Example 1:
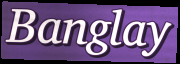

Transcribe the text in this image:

Banglay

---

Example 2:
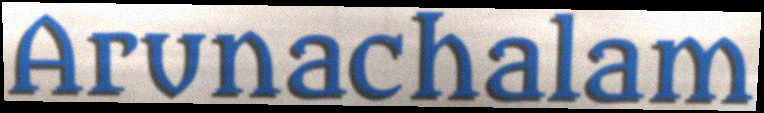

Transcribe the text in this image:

Arunachalam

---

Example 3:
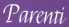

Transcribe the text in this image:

Parenti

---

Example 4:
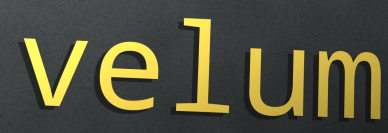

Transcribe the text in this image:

velum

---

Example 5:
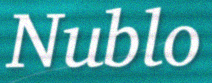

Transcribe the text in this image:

Nublo